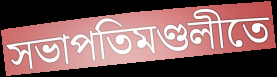
সভাপতিমণ্ডলীতে